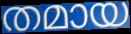
തമായ